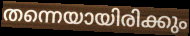
തന്നെയായിരിക്കും